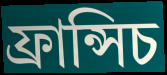
ফ্ৰান্সিচ